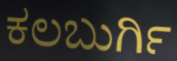
ಕಲಬುರ್ಗಿ